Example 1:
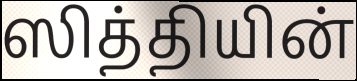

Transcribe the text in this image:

ஸித்தியின்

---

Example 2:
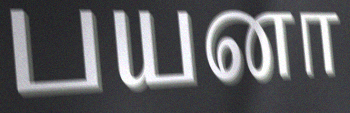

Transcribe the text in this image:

பயனா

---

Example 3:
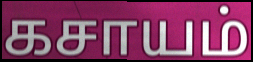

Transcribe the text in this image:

கசாயம்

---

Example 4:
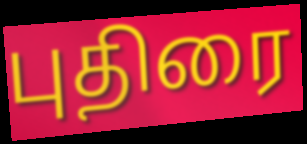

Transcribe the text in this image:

புதிரை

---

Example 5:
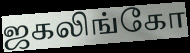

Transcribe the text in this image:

ஜகலிங்கோ